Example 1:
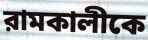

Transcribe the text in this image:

রামকালীকে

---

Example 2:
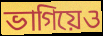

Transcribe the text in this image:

ভাগিয়েও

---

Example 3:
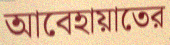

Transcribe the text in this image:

আবেহায়াতের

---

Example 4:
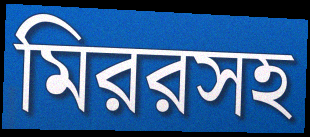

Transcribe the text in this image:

মিররসহ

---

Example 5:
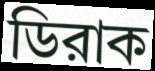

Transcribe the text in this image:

ডিরাক